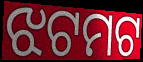
ଝଟମଟ